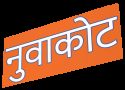
नुवाकोट